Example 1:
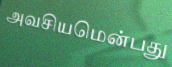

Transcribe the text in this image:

அவசியமென்பது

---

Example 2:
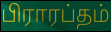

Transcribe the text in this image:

பிராரப்தம்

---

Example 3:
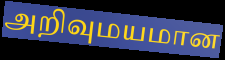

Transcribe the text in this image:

அறிவுமயமான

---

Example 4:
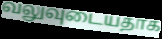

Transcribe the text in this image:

வலுவுடையதாக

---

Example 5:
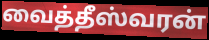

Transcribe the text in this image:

வைத்தீஸ்வரன்